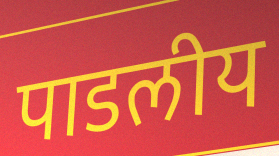
पाडलीय